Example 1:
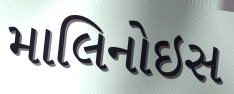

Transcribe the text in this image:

માલિનોઇસ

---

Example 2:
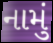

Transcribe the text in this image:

નામું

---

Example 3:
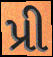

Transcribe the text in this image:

પ્રી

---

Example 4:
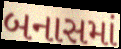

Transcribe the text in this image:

બનાસમાં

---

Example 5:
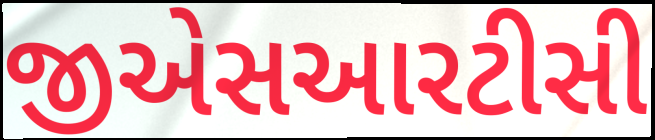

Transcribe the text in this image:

જીએસઆરટીસી